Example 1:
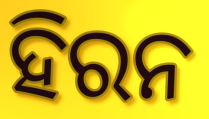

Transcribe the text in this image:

ହିରନ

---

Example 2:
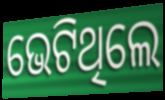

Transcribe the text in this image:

ଭେଟିଥିଲେ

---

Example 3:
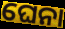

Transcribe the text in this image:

ଘେନା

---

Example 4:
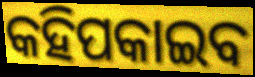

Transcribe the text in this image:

କହିପକାଇବ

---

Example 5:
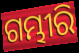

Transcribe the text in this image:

ଗମ୍ଭୀରି